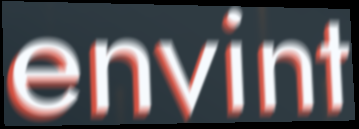
envint